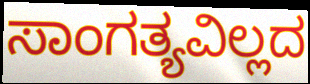
ಸಾಂಗತ್ಯವಿಲ್ಲದ